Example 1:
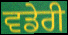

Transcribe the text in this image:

ਵਡੇਰੀ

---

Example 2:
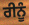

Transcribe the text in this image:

ਰੀਨੂੰ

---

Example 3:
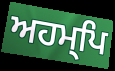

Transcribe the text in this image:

ਅਹਮ੍ਪਿ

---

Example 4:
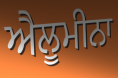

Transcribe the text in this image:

ਐਲੂਮੀਨਾ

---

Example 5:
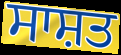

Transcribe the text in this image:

ਸਾਸ਼ਤ